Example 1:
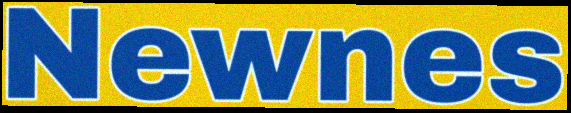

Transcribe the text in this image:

Newnes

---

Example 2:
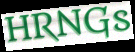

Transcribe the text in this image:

HRNGs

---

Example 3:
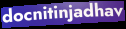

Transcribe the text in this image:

docnitinjadhav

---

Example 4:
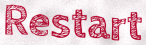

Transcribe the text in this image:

Restart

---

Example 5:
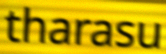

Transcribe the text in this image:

tharasu